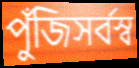
পুঁজিসর্বস্ব